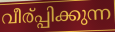
വീര്പ്പിക്കുന്ന